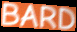
BARD